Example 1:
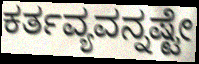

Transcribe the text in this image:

ಕರ್ತವ್ಯವನ್ನಷ್ಟೇ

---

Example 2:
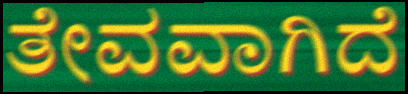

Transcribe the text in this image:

ತೇವವಾಗಿದೆ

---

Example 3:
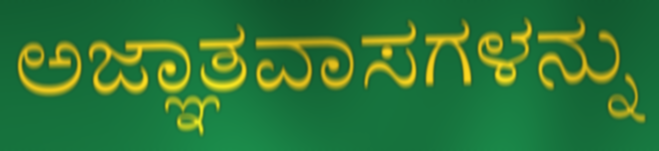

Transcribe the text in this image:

ಅಜ್ಞಾತವಾಸಗಳನ್ನು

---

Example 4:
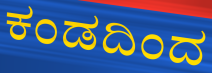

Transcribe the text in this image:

ಕಂಡದಿಂದ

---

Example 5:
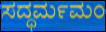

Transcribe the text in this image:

ಸದ್ಧರ್ಮಮಂ